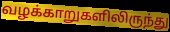
வழக்காறுகளிலிருந்து